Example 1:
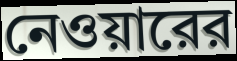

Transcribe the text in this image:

নেওয়ারের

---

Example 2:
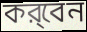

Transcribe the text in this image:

কর্‌বেন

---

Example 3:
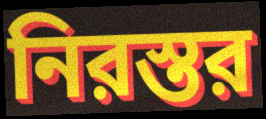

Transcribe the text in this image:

নিরস্তর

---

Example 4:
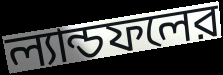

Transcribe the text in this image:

ল্যান্ডফলের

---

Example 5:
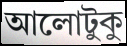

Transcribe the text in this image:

আলোটুকু